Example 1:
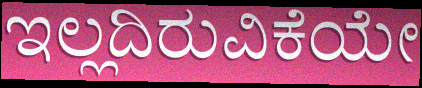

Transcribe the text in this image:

ಇಲ್ಲದಿರುವಿಕೆಯೇ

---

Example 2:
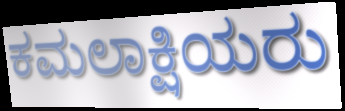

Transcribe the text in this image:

ಕಮಲಾಕ್ಷಿಯರು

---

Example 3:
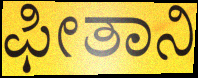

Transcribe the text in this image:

ಫೀತಾನಿ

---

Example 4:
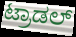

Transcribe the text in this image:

ಟ್ರಾಡಲ್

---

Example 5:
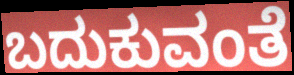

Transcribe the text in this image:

ಬದುಕುವಂತೆ